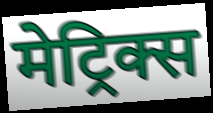
मेट्रिक्‍स